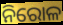
ନିରୋଳ